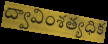
ద్వావింశత్యధిక